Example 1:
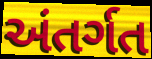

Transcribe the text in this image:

અંતર્ગત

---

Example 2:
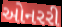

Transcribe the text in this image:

ઓનરરી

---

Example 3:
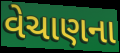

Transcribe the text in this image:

વેચાણના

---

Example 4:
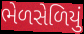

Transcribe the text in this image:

ભેળસેળિયું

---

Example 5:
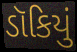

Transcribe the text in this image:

ડૉકિયું